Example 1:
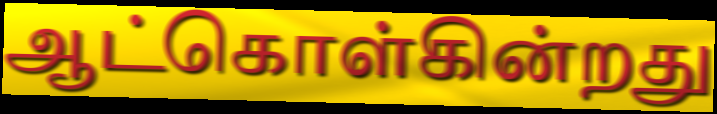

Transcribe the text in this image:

ஆட்கொள்கின்றது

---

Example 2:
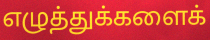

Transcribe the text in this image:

எழுத்துக்களைக்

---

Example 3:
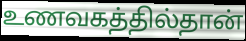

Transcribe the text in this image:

உணவகத்தில்தான்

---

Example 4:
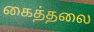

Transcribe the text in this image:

கைத்தலை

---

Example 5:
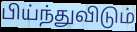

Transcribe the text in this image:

பிய்ந்துவிடும்